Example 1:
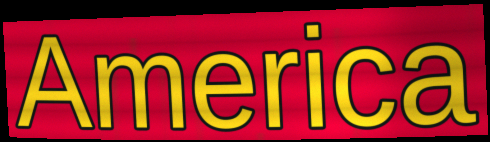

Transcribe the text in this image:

America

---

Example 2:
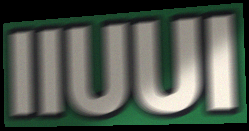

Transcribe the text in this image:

IIUUI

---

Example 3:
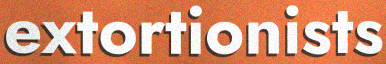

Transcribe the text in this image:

extortionists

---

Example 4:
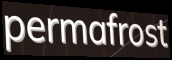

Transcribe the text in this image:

permafrost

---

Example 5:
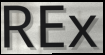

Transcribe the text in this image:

REx